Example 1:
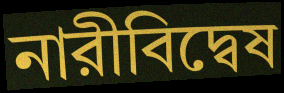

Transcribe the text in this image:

নারীবিদ্বেষ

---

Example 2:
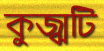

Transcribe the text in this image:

কুজ্ঝটি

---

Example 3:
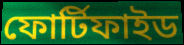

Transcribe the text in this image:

ফোর্টিফাইড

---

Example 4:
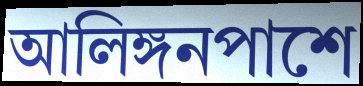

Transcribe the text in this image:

আলিঙ্গনপাশে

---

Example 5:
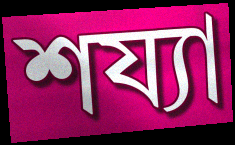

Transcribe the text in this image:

শয্যা